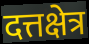
दत्तक्षेत्र